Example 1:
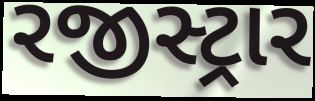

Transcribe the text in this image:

રજીસ્ટ્રાર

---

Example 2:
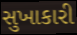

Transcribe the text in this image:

સુખાકારી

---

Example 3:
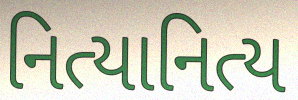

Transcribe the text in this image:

નિત્યાનિત્ય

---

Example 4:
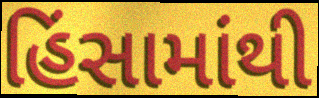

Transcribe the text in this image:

હિંસામાંથી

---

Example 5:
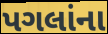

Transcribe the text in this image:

પગલાંના